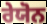
ਰੇਯੋਨ